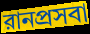
রানপ্রসবা